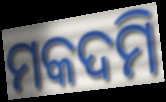
ମକଦମି